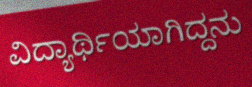
ವಿದ್ಯಾರ್ಥಿಯಾಗಿದ್ದನು